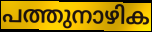
പത്തുനാഴിക